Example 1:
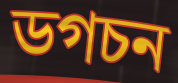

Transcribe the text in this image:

ডগচন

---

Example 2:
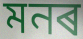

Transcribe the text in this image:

মনৰ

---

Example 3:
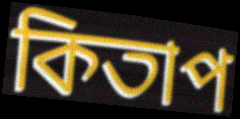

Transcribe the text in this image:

কিতাপ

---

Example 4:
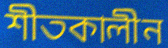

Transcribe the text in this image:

শীতকালীন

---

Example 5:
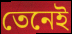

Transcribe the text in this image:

তেনেই